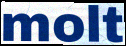
molt